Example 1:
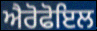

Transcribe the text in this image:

ਐਰੋਫੋਇਲ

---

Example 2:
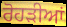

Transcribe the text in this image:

ਰੋਹੜੀਆਂ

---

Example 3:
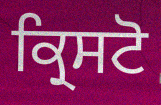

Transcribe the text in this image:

ਕ੍ਰਿਸਟੋ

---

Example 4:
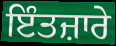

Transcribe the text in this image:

ਇੰਤਜ਼ਾਰੇ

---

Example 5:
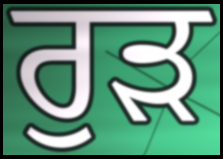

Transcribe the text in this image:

ਰੁੜ